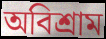
অবিশ্রাম